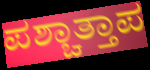
ಪಶ್ಚಾತ್ತಾಪ